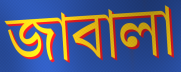
জাবালা